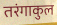
तरंगाकुल